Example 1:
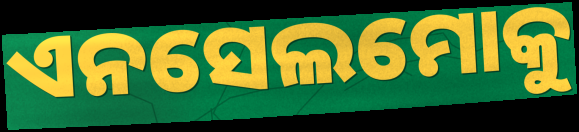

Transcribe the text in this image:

ଏନସେଲମୋକୁ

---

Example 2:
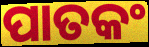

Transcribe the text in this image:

ପାତକଂ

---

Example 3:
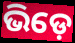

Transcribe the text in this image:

ଭିଡ଼େ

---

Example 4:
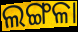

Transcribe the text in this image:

ଲଙ୍ଗଳା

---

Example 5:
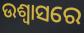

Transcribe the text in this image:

ଉଶ୍ଵାସରେ